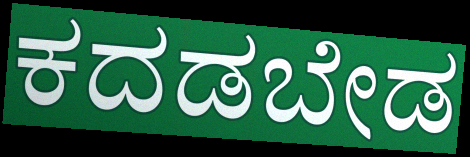
ಕದಡಬೇಡ